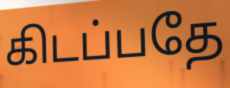
கிடப்பதே